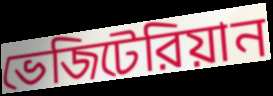
ভেজিটেরিয়ান